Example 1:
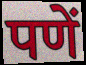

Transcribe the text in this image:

पणें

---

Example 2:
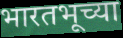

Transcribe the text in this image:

भारतभूच्या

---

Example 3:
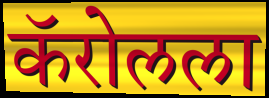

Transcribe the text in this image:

कॅरोलला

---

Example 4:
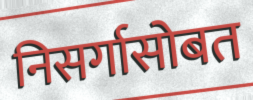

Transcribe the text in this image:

निसर्गासोबत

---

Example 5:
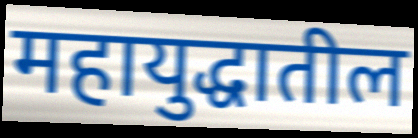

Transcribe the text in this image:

महायुद्धातील